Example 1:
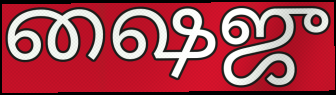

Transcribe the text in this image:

ஷைஜு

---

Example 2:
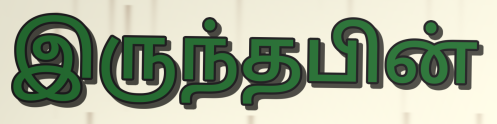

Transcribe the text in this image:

இருந்தபின்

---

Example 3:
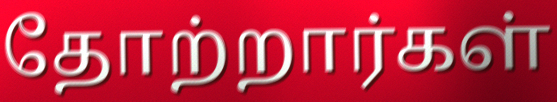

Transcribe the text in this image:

தோற்றார்கள்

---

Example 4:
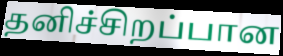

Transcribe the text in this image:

தனிச்சிறப்பான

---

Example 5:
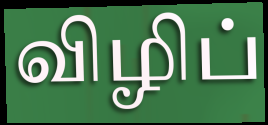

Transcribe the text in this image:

விழிப்